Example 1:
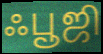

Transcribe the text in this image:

ஃபூஜி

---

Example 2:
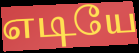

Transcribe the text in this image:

எடியே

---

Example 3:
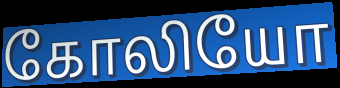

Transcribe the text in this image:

கோலியோ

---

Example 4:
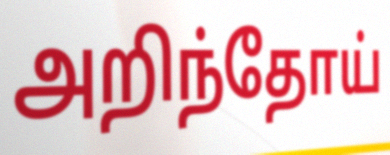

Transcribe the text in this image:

அறிந்தோய்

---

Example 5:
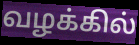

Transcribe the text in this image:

வழக்கில்